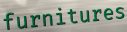
furnitures